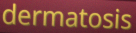
dermatosis